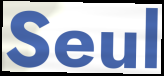
Seul